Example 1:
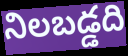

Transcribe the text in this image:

నిలబడ్డది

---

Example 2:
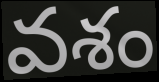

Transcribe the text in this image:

వశం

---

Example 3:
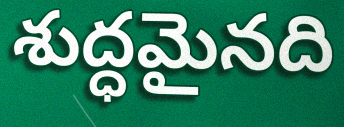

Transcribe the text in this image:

శుద్ధమైనది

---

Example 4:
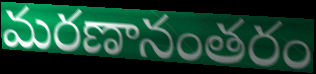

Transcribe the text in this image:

మరణానంతరం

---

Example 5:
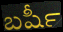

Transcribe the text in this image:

బషీర్‍